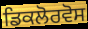
ਡਿਕਲੋਰਵੋਸ